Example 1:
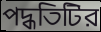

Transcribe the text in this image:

পদ্ধতিটির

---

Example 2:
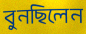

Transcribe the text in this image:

বুনছিলেন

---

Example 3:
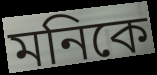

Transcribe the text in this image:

মনিকে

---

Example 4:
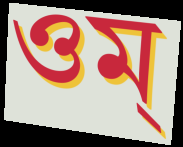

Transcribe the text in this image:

ওম্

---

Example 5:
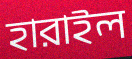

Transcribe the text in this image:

হারাইল